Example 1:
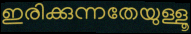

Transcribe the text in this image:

ഇരിക്കുന്നതേയുള്ളൂ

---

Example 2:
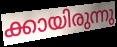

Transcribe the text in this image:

ക്കായിരുന്നു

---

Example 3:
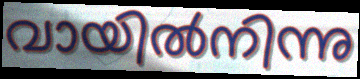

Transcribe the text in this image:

വായിൽനിന്നു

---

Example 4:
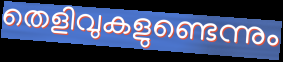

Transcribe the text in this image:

തെളിവുകളുണ്ടെന്നും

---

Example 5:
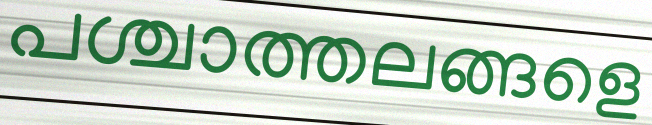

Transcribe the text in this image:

പശ്ചാത്തലങ്ങളെ